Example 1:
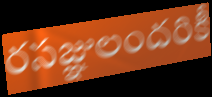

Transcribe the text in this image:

రసజ్ఞులందరికీ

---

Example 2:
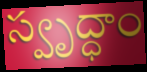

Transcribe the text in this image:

స్వృద్ధాం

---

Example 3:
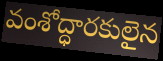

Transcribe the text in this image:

వంశోద్ధారకులైన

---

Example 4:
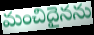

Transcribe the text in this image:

మంచిదైనను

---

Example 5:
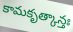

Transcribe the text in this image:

కామకృత్కాన్తః